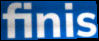
finis